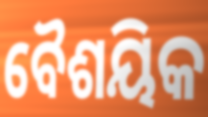
ବୈଶୟିକ